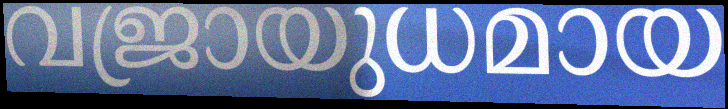
വജ്രായുധമായ